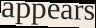
appears